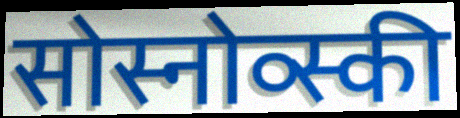
सोस्नोव्स्की